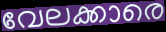
വേലക്കാരെ